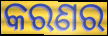
କରଣର